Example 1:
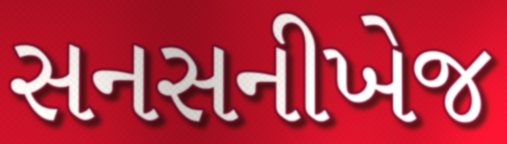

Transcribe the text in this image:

સનસનીખેજ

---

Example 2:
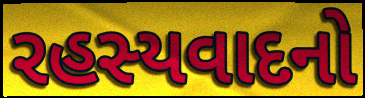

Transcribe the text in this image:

રહસ્યવાદનો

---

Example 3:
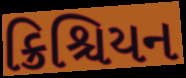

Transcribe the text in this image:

ક્રિશ્ચિયન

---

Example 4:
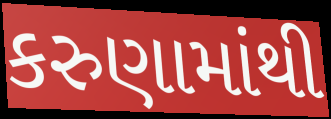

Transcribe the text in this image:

કરુણામાંથી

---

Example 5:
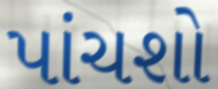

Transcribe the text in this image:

પાંચશો